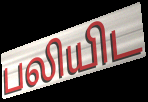
பலியிட